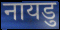
नायडु